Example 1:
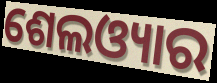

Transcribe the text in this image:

ଶେଲଓ୍ୟାର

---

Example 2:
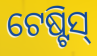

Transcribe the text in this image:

ଟେଷ୍ଟିସ୍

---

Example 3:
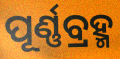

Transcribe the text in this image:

ପୂର୍ଣ୍ଣବ୍ରହ୍ମ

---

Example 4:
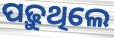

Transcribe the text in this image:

ପଢ଼ୁଥିଲେ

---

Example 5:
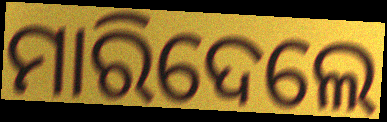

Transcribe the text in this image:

ମାରିଦେଲେ